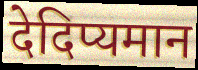
देदिप्यमान